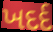
ખદર્દ